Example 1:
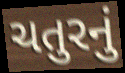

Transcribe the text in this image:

ચતુરનું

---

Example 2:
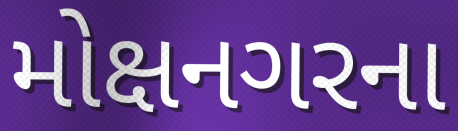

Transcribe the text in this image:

મોક્ષનગરના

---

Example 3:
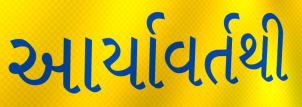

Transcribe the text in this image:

આર્યાવર્તથી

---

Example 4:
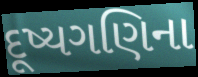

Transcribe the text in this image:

દૂષ્યગણિના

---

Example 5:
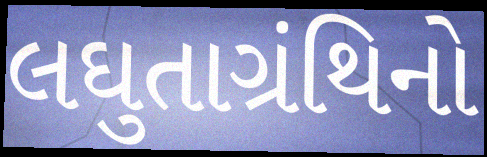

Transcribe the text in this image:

લઘુતાગ્રંથિનો